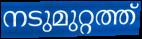
നടുമുറ്റത്ത്